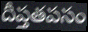
దీప్తతపసం